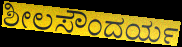
ಶೀಲಸೌಂದರ್ಯ